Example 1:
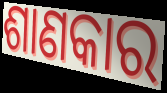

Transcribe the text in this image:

ଶାଣକାର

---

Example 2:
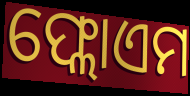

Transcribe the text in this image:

ଫ୍ଲୋଏମ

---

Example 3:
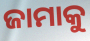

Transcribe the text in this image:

ଜାମାକୁ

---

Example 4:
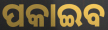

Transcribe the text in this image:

ପକାଇବ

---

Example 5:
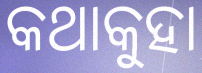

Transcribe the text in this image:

କଥାକୁହା